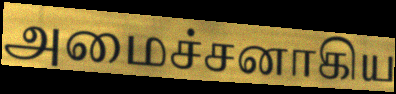
அமைச்சனாகிய